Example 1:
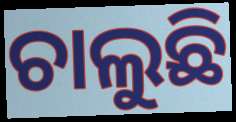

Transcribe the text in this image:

ଚାଲୁଛି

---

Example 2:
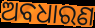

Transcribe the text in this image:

ଅବଧାରଣ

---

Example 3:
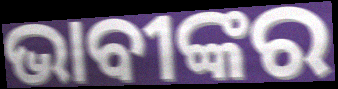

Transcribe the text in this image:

ଭାବୀଙ୍କର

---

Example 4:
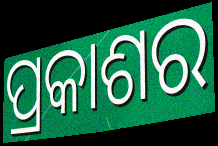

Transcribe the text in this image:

ପ୍ରକାଶର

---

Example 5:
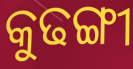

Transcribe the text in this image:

କୁଢଙ୍ଗୀ